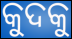
କୁଦକୁ